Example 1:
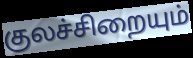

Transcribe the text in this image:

குலச்சிறையும்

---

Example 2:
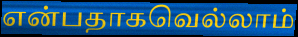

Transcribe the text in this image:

என்பதாகவெல்லாம்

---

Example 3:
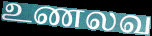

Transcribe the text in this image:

உணலவ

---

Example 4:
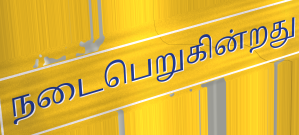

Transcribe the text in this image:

நடைபெறுகின்றது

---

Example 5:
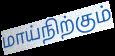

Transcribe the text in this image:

மாய்நிற்கும்